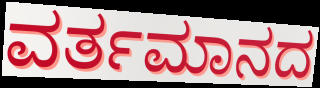
ವರ್ತಮಾನದ